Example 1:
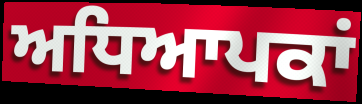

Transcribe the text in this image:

ਅਧਿਆਪਕਾਂ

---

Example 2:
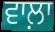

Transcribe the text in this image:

ਵਾਲ਼ਾ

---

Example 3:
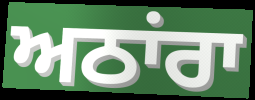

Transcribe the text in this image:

ਅਠਾਂਰਾ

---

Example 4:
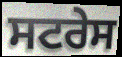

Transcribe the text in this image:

ਸਟਰੇਸ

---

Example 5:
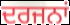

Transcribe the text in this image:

ਦਰਜਨਾਂ